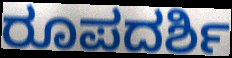
ರೂಪದರ್ಶಿ